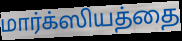
மார்க்ஸியத்தை